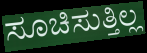
ಸೂಚಿಸುತ್ತಿಲ್ಲ